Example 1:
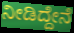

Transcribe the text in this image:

ನೀಡಿದ್ದೇನೆ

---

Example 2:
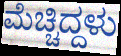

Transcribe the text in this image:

ಮೆಚ್ಚಿದ್ದಳು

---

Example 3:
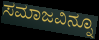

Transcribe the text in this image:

ಸಮಾಜವಿನ್ನೂ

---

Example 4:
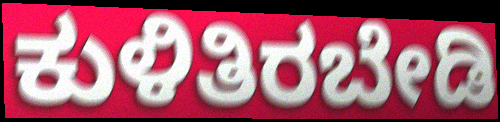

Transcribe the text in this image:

ಕುಳಿತಿರಬೇಡಿ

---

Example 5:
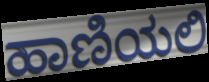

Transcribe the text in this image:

ಹಾಣಿಯಲಿ